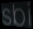
sbi